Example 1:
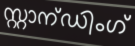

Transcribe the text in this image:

സ്റ്റാന്ഡിംഗ്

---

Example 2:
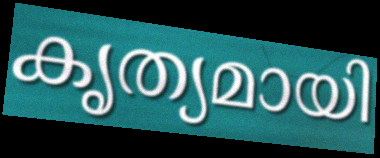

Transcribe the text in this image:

കൃത്യമായി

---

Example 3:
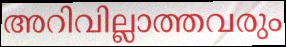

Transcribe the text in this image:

അറിവില്ലാത്തവരും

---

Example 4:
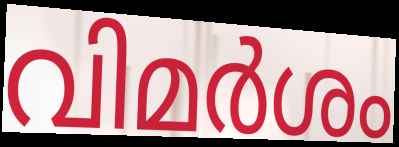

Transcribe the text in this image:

വിമർശം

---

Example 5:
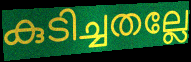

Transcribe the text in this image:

കുടിച്ചതല്ലേ